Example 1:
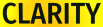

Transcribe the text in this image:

CLARITY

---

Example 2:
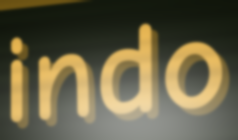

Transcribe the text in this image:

indo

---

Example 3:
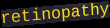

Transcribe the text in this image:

retinopathy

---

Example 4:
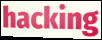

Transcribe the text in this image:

hacking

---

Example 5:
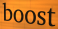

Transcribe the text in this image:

boost